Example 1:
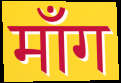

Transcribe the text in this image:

माँग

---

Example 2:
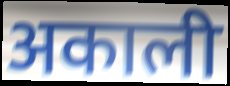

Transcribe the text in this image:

अकाली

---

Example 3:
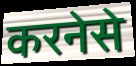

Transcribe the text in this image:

करनेसे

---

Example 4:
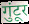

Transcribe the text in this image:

गुंटूर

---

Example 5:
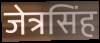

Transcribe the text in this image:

जेत्रसिंह